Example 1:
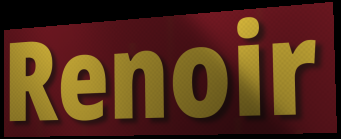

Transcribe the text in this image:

Renoir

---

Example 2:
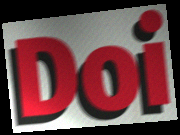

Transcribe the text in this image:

Doi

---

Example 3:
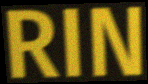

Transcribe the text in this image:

RIN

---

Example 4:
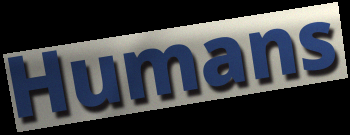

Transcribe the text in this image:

Humans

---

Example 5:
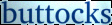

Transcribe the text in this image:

buttocks